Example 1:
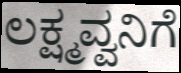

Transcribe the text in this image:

ಲಕ್ಷ್ಮವ್ವನಿಗೆ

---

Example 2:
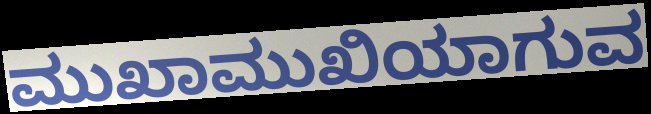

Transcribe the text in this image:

ಮುಖಾಮುಖಿಯಾಗುವ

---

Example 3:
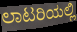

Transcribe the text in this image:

ಲಾಟರಿಯಲ್ಲಿ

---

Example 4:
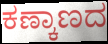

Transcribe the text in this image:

ಕಣ್ಕಾಣದ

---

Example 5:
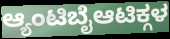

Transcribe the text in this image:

ಆ್ಯಂಟಿಬೈಆಟಿಕ್ಗಳ